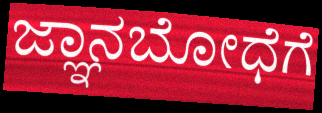
ಜ್ಞಾನಬೋಧೆಗೆ